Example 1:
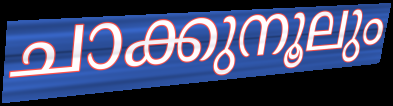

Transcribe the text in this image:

ചാക്കുനൂലും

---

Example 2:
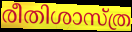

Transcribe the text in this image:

രീതിശാസ്ത്ര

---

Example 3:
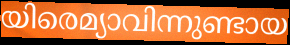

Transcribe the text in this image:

യിരെമ്യാവിന്നുണ്ടായ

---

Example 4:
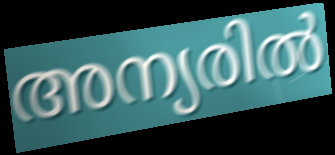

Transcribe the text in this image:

അന്യരിൽ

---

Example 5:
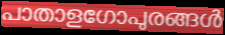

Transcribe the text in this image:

പാതാളഗോപുരങ്ങൾ